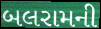
બલરામની